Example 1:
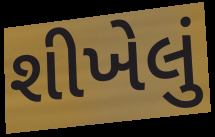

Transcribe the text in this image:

શીખેલું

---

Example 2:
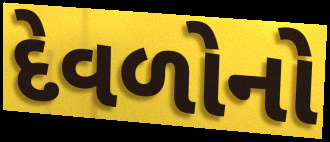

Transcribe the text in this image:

દેવળોનો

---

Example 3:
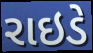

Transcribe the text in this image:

રાઇડે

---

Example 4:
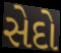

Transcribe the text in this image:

સેદો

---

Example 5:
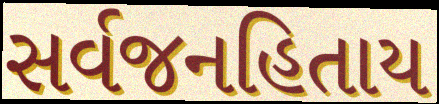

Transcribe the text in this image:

સર્વજનહિતાય